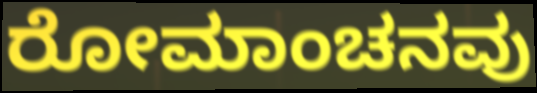
ರೋಮಾಂಚನವು